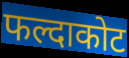
फल्दाकोट